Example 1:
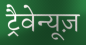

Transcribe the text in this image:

ट्रैवेन्यूज़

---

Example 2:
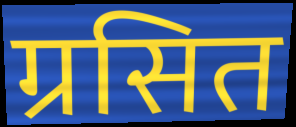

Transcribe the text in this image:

ग्रसित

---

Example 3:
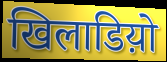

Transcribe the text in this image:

खिलाडिय़ो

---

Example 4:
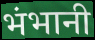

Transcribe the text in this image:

भंभानी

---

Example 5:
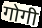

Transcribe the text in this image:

गोगी